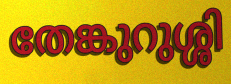
തേങ്കുറുശ്ശി